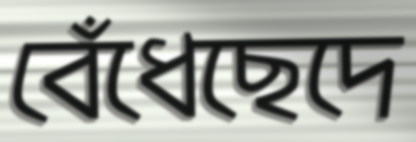
বেঁধেছেদে